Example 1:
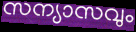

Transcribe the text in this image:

സന്യാസവും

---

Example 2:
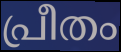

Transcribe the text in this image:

പ്രീതം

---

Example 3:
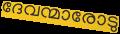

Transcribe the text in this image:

ദേവന്മാരോടു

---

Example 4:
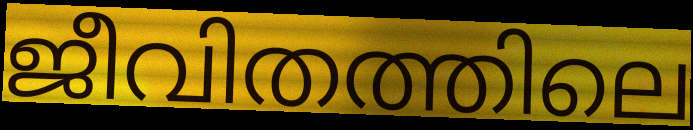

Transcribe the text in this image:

ജീവിതത്തിലെ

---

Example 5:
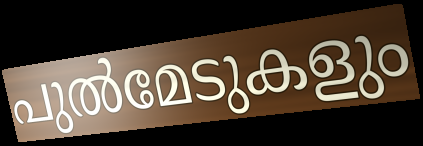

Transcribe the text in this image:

പുൽമേടുകളും